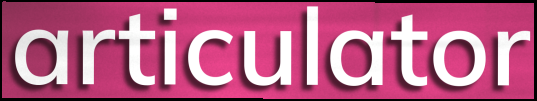
articulator